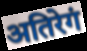
अतिरेगं